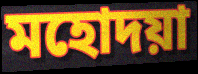
মহোদয়া